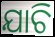
ଯାଚି